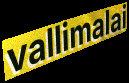
vallimalai